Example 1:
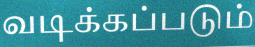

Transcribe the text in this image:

வடிக்கப்படும்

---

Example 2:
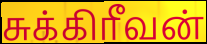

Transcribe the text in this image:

சுக்கிரீவன்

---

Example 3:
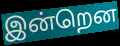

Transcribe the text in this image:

இன்றென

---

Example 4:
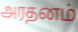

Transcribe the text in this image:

அரதனம்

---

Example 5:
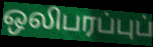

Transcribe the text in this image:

ஒலிபரப்புப்